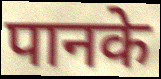
पानके